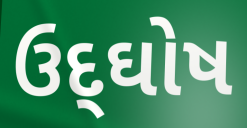
ઉદ્‌ઘોષ